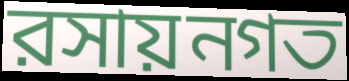
রসায়নগত